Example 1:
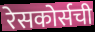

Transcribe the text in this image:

रेसकोर्सची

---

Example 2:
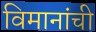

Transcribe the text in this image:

विमानांची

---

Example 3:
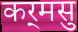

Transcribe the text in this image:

कर्मसु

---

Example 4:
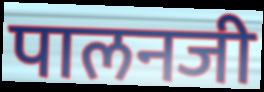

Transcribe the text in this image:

पालनजी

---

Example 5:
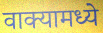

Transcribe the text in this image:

वाक्यामध्ये